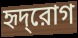
হৃদ্‌রোগ